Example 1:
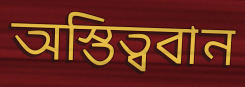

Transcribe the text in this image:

অস্তিত্ববান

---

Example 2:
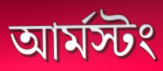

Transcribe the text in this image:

আর্মস্টং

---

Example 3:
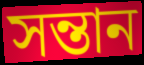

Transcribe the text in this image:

সন্তান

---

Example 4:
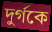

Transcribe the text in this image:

দুর্গকে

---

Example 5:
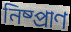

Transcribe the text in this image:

নিষ্প্রাণ